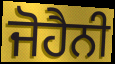
ਜੋਹੈਨੀ